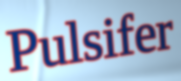
Pulsifer